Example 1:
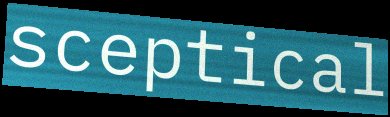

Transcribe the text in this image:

sceptical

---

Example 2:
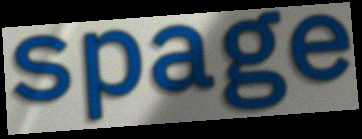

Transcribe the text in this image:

spage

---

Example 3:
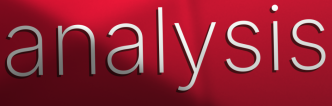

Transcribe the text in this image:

analysis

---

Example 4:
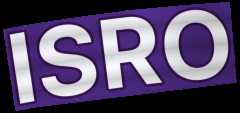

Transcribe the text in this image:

ISRO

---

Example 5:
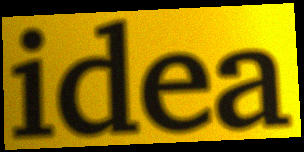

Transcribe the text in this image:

idea